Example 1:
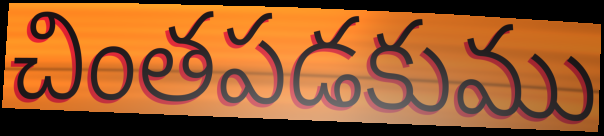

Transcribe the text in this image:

చింతపడకుము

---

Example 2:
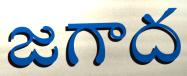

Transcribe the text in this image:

జగాద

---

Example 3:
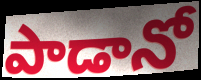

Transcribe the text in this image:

పాడానో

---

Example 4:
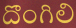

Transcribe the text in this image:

దొంగిలి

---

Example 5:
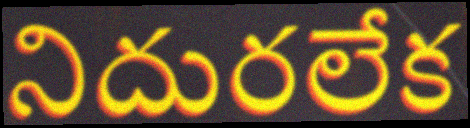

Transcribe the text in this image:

నిదురలేక